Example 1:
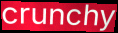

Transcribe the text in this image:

crunchy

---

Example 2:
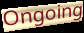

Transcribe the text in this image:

Ongoing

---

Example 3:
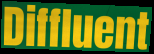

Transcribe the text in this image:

Diffluent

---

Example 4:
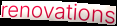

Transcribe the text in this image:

renovations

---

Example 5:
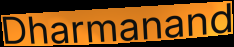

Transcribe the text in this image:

Dharmanand